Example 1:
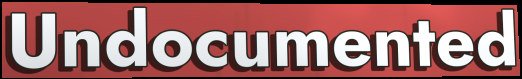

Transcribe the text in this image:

Undocumented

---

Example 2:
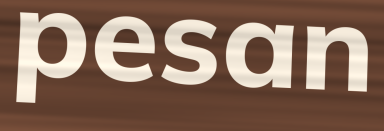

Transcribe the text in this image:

pesan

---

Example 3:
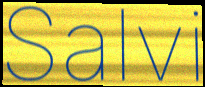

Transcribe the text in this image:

Salvi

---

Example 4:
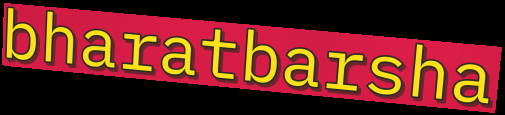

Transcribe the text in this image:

bharatbarsha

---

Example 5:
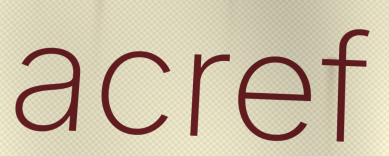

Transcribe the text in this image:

acref